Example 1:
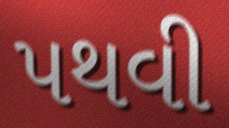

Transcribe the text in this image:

પથવી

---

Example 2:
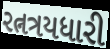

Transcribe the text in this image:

રત્નત્રયધારી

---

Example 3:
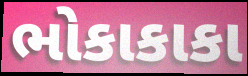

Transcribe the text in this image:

ભોકાકાકા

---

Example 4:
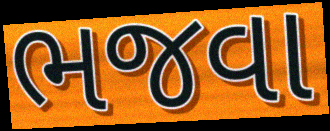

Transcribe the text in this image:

ભજવા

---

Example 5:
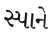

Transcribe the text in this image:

સ્પાને